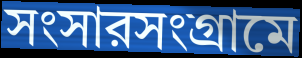
সংসারসংগ্রামে